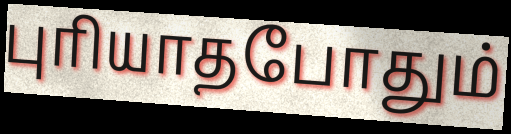
புரியாதபோதும்